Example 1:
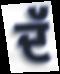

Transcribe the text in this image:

ਦੱ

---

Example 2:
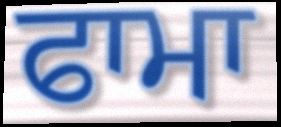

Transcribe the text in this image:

ਫਾਮਾ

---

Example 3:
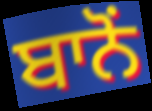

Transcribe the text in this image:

ਬਾਨੋਂ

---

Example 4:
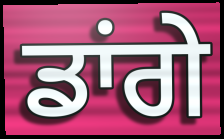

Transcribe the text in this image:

ਡਾਂਗੇ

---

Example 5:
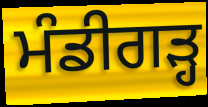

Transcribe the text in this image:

ਮੰਡੀਗੜ੍ਹ